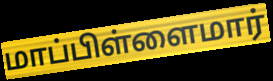
மாப்பிள்ளைமார்